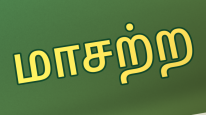
மாசற்ற